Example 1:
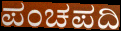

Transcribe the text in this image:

ಪಂಚಪದಿ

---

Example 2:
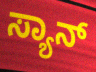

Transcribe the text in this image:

ಸ್ಯಾನ್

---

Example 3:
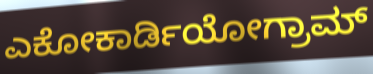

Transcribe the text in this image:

ಎಕೋಕಾರ್ಡಿಯೋಗ್ರಾಮ್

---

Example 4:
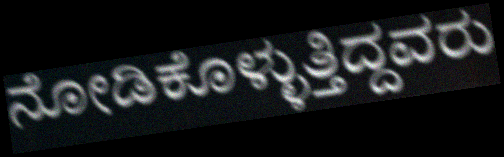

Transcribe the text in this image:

ನೋಡಿಕೊಳ್ಳುತ್ತಿದ್ದವರು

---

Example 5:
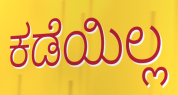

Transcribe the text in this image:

ಕಡೆಯಿಲ್ಲ